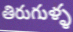
తిరుగుళ్ళ